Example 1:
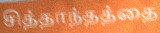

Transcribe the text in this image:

சித்தாந்தத்தை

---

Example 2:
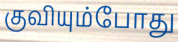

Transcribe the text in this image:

குவியும்போது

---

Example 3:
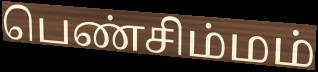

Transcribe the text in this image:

பெண்சிம்மம்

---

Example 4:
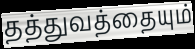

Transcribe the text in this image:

தத்துவத்தையும்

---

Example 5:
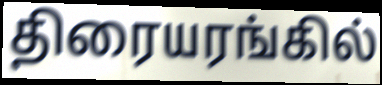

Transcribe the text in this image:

திரையரங்கில்